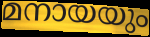
മനായയും